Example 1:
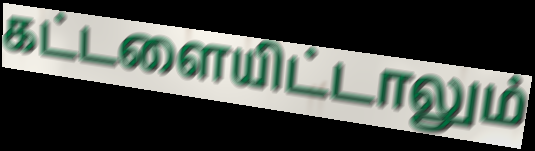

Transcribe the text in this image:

கட்டளையிட்டாலும்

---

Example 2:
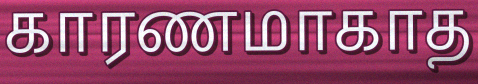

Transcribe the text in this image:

காரணமாகாத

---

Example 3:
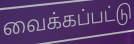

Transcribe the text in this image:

வைக்கப்பட்டு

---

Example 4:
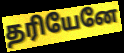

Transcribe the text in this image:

தரியேனே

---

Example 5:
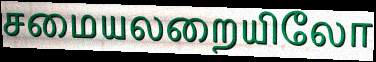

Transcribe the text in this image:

சமையலறையிலோ